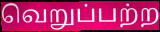
வெறுப்பற்ற